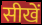
सीखें